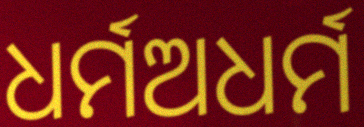
ଧର୍ମଅଧର୍ମ